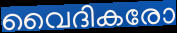
വൈദികരോ